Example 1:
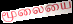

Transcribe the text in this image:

மூலையை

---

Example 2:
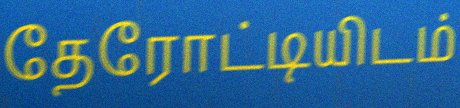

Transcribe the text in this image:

தேரோட்டியிடம்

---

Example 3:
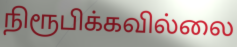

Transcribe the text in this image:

நிரூபிக்கவில்லை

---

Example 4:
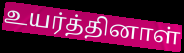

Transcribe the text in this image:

உயர்த்தினாள்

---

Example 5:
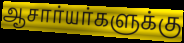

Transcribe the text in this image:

ஆசார்யர்களுக்கு